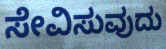
ಸೇವಿಸುವುದು